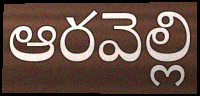
ఆరవెల్లి